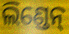
ଲିଣ୍ଡେନ୍